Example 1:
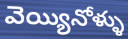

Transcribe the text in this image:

వెయ్యినోళ్ళు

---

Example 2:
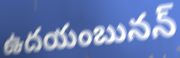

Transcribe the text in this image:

ఉదయంబునన్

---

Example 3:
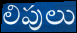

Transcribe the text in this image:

లిపులు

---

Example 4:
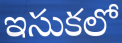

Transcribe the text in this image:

ఇసుకలో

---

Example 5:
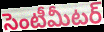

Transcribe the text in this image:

సెంటీమీటర్